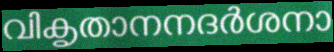
വികൃതാനനദർശനാ